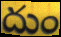
దుం